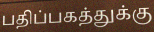
பதிப்பகத்துக்கு